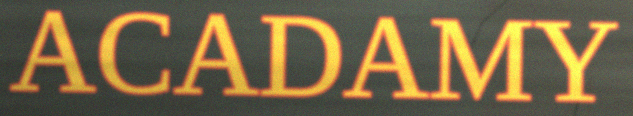
ACADAMY